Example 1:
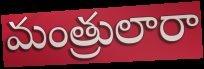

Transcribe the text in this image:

మంత్రులారా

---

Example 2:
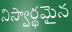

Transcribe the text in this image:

నిస్వార్థమైన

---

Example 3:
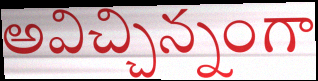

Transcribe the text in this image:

అవిచ్చిన్నంగా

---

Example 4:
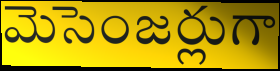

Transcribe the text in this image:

మెసెంజర్లుగా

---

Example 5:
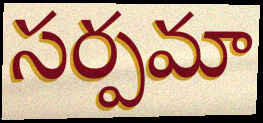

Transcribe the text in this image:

సర్పమా